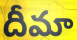
దీమా